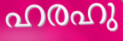
ഹരഹു